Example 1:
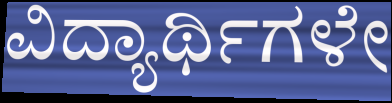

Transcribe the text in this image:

ವಿದ್ಯಾರ್ಥಿಗಳೇ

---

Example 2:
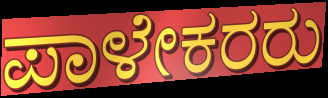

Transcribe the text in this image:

ಪಾಳೇಕರರು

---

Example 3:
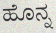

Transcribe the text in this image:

ಹೊನ್ನ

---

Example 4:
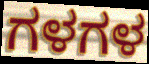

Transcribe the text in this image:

ಗಳಗಳ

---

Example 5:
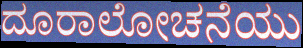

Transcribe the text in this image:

ದೂರಾಲೋಚನೆಯು